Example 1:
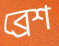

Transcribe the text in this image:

ব্রেশ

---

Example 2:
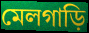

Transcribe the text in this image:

মেলগাড়ি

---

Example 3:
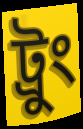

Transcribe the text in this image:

ট্রুং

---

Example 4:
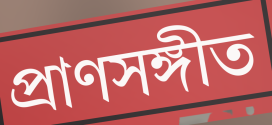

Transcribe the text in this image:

প্রাণসঙ্গীত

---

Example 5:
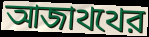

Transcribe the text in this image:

আজাথথের